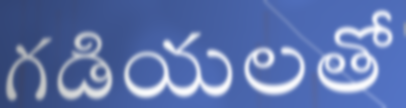
గడియలతో